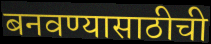
बनवण्यासाठीची